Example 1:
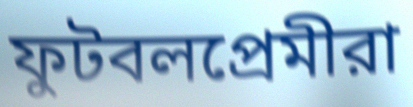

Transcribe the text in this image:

ফুটবলপ্রেমীরা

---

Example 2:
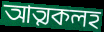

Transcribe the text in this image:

আত্মকলহ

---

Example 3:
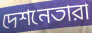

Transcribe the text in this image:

দেশনেতারা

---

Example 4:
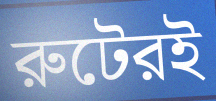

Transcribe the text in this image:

রুটেরই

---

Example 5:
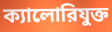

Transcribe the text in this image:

ক্যালোরিযুক্ত